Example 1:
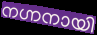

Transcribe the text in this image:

നഗ്നനായി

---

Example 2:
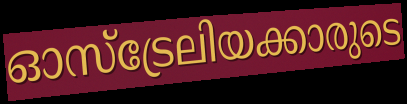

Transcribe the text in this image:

ഓസ്ട്രേലിയക്കാരുടെ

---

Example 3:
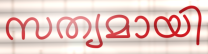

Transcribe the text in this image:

സത്യമായി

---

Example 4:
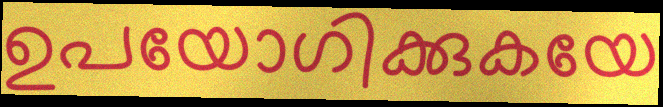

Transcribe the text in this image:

ഉപയോഗിക്കുകയേ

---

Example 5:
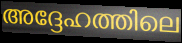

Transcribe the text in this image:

അദ്ദേഹത്തിലെ